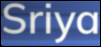
Sriya